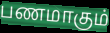
பணமாகும்